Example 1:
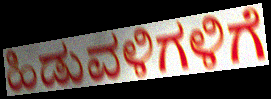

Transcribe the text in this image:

ಹಿಡುವಳಿಗಳಿಗೆ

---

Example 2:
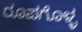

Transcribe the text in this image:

ರೂಪಗೊಳ್ಳ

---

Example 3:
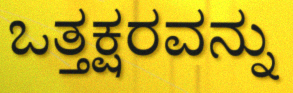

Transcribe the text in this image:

ಒತ್ತಕ್ಷರವನ್ನು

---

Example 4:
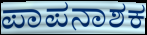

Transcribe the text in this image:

ಪಾಪನಾಶಕ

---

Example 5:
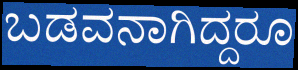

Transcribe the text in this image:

ಬಡವನಾಗಿದ್ದರೂ